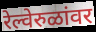
रेल्वेरुळांवर